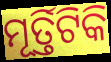
ମୂର୍ତ୍ତିଟିକି